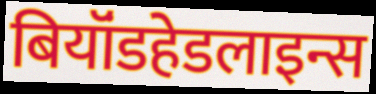
बियॉंडहेडलाइन्स